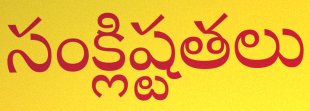
సంక్లిష్టతలు